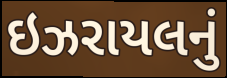
ઇઝરાયલનું